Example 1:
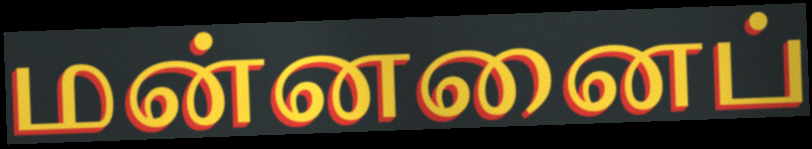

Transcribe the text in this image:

மன்னனைப்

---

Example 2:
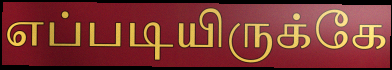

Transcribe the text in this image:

எப்படியிருக்கே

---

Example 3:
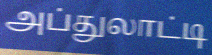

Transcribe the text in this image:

அப்துலாட்டி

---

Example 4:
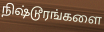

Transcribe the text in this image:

நிஷ்டூரங்களை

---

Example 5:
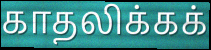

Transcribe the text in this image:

காதலிக்கக்